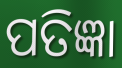
ପତିଜ୍ଞା